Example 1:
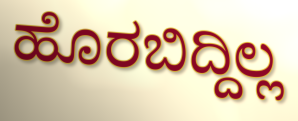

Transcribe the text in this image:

ಹೊರಬಿದ್ದಿಲ್ಲ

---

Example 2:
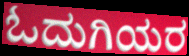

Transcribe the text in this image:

ಓದುಗಿಯರ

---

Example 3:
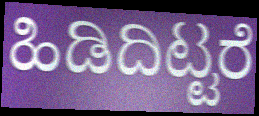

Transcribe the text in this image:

ಹಿಡಿದಿಟ್ಟರೆ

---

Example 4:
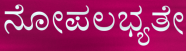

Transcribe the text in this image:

ನೋಪಲಭ್ಯತೇ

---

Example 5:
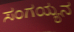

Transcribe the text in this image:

ಸಂಗಯ್ಯನ